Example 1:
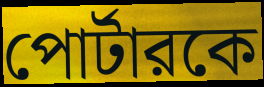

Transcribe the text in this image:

পোর্টারকে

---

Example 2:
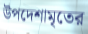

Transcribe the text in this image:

উপদেশামৃতের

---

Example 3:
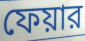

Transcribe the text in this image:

ফেয়ার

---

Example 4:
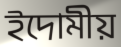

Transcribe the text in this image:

ইদোমীয়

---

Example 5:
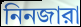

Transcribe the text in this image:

নিনজারা